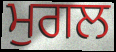
ਮੁਗਲ